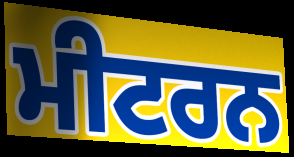
ਮੀਟਰਨ